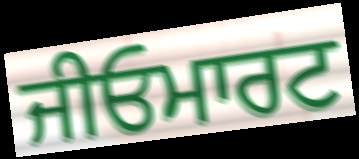
ਜੀਓਮਾਰਟ